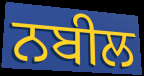
ਨਬੀਲ